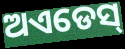
ଅଏଡେସ୍